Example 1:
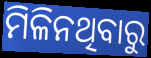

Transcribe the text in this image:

ମିଳିନଥିବାରୁ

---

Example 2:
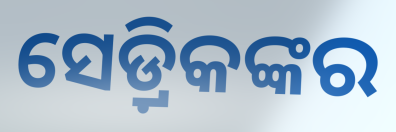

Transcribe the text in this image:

ସେଡ଼୍ରିକଙ୍କର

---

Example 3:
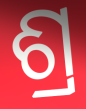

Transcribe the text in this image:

ଶ୍ର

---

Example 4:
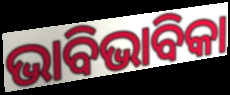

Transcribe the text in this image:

ଭାବିଭାବିକା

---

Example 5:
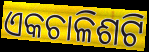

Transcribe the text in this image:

ଏକଚାଳିଶଟି